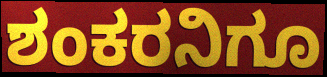
ಶಂಕರನಿಗೂ